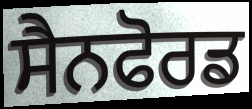
ਸੈਨਫੋਰਡ